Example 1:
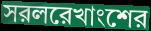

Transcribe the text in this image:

সরলরেখাংশের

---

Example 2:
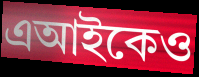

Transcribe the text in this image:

এআইকেও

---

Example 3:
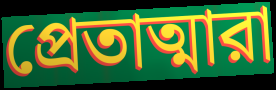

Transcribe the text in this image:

প্রেতাত্মারা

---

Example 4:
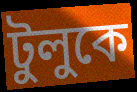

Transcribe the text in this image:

টুলুকে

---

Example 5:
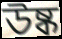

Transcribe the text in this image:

উষ্ক